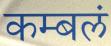
कम्बलं